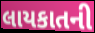
લાયકાતની